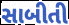
સાબીતી